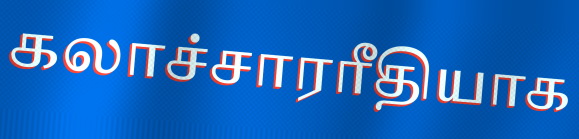
கலாச்சாரரீதியாக